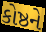
કોષ્ઠને